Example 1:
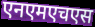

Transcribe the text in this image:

एनएमएचएस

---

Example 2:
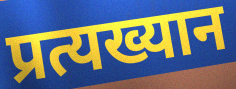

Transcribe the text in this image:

प्रत्यख्यान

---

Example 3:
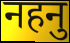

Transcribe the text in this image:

नहनु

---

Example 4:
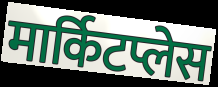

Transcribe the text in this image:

मार्किटप्लेस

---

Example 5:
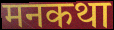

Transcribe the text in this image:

मनकथा